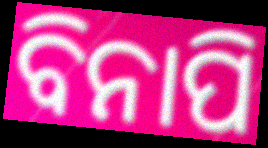
ବିନାପି